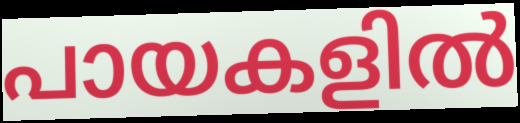
പായകളിൽ